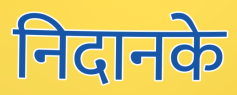
निदानके